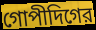
গোপীদিগের